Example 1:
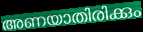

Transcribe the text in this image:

അണയാതിരിക്കും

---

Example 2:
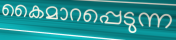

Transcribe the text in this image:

കൈമാറപ്പെടുന്ന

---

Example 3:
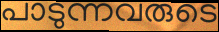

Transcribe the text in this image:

പാടുന്നവരുടെ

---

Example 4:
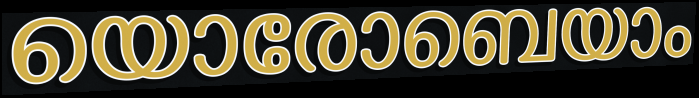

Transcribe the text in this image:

യൊരോബെയാം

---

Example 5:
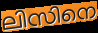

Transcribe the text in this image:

ലിസിനെ